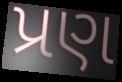
પ્રણ